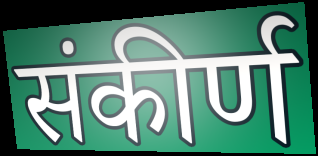
संकीर्ण